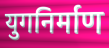
युगनिर्माण